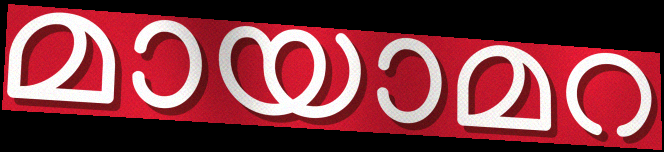
മായാമറ